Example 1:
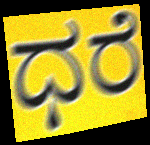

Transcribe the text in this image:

ಧರೆ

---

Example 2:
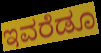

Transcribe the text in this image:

ಇವರೆಡೂ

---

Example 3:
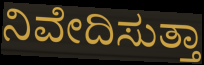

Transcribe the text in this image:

ನಿವೇದಿಸುತ್ತಾ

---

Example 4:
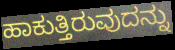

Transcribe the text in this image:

ಹಾಕುತ್ತಿರುವುದನ್ನು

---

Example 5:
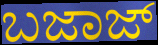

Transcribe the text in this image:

ಬಜಾಜ್